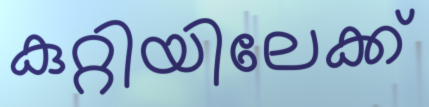
കുറ്റിയിലേക്ക്